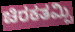
ಚಿರಕತಮ್ಪಿ